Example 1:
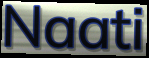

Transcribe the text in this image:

Naati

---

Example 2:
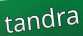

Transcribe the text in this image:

tandra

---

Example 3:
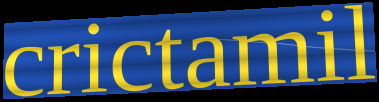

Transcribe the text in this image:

crictamil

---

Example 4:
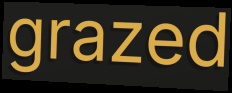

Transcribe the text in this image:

grazed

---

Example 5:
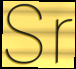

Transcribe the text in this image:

Sr